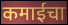
कमाईचा